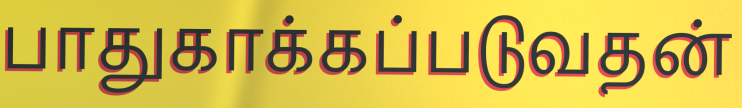
பாதுகாக்கப்படுவதன்